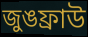
জুঙফ্রাউ